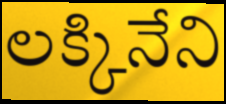
లక్కినేని